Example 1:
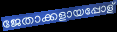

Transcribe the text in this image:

ജേതാക്കളായപ്പോള്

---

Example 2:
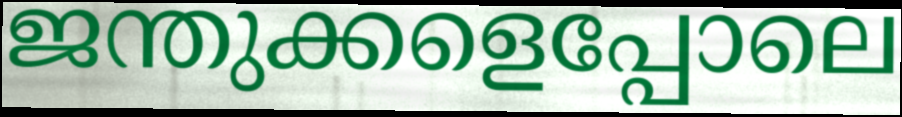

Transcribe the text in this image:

ജന്തുക്കളെപ്പോലെ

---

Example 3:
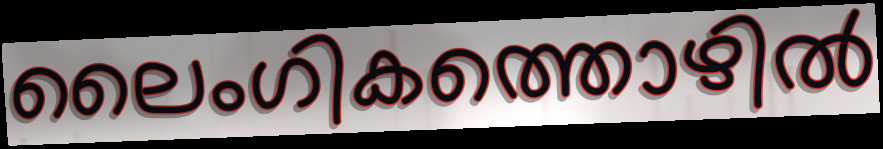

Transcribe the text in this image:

ലൈംഗികത്തൊഴിൽ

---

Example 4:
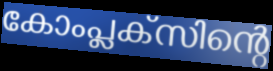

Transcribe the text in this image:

കോംപ്ലക്‌സിന്റെ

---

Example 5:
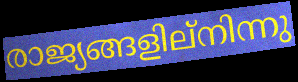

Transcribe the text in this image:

രാജ്യങ്ങളില്നിന്നു